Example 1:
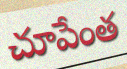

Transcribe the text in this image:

చూపేంత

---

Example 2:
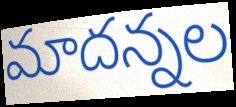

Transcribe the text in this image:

మాదన్నల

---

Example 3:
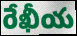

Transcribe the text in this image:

రేఖీయ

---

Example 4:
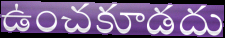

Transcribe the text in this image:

ఉంచకూడదు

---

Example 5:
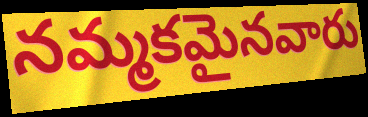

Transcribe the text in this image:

నమ్మకమైనవారు